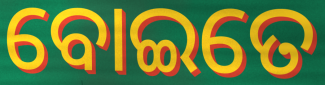
ବୋଇତେ